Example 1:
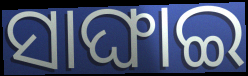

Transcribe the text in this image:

ସାଙ୍ଘାଇ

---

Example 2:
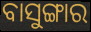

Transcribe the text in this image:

ବାସୁଙ୍ଗାର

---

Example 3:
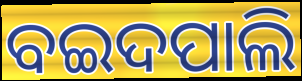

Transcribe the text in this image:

ବଇଦପାଲି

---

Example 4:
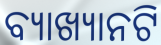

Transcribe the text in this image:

ବ୍ୟାଖ୍ୟାନଟି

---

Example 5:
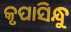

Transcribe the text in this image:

କୃପାସିନ୍ଧୁ